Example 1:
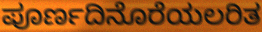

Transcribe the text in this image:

ಪೂರ್ಣದಿನೊರೆಯಲರಿತ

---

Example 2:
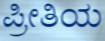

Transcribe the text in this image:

ಪ್ರೀತಿಯ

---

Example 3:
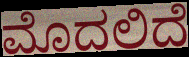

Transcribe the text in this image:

ಮೊದಲಿದೆ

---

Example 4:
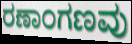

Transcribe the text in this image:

ರಣಾಂಗಣವು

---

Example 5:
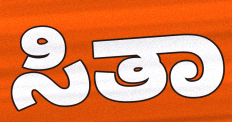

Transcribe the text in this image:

ಸಿತಾ